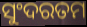
ସୁଂଦରତମ